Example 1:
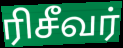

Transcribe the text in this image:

ரிசீவர்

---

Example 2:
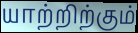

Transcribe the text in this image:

யாற்றிற்கும்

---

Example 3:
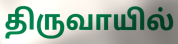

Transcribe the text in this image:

திருவாயில்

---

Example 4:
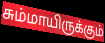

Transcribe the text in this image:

சும்மாயிருக்கும்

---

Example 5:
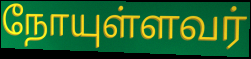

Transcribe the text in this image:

நோயுள்ளவர்